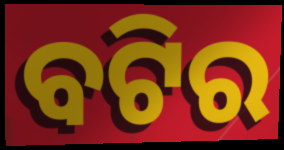
ବଟିର